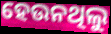
ହେଉନଥିଲୁ